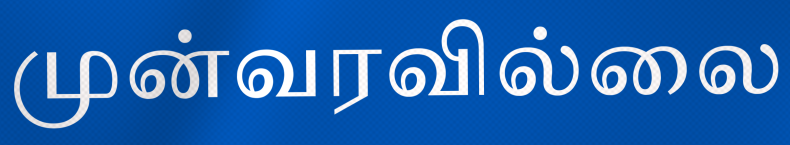
முன்வரவில்லை